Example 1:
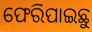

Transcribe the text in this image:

ଫେରିପାଇଛୁ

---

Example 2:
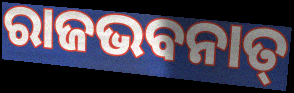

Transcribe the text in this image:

ରାଜଭବନାତ୍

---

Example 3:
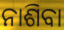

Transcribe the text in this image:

ନାଶିବା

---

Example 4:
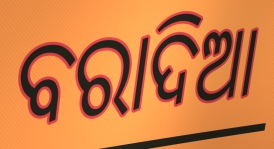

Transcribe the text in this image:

ବରାଦିଆ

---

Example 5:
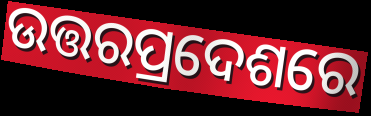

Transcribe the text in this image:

ଉତ୍ତରପ୍ରଦେଶରେ